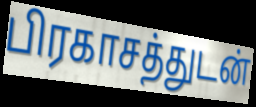
பிரகாசத்துடன்